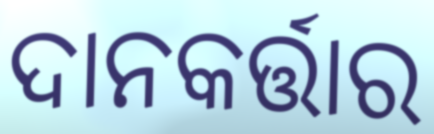
ଦାନକର୍ତ୍ତାର